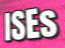
ISEs